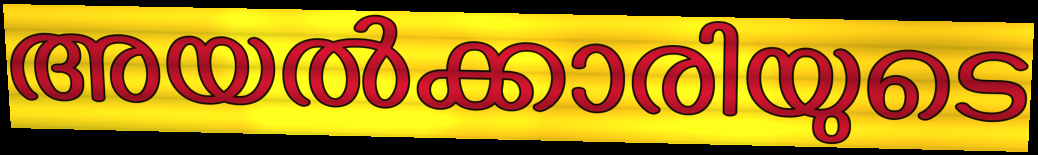
അയൽക്കാരിയുടെ